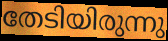
തേടിയിരുന്നു